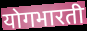
योगभारती